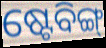
ଷ୍ଟେବିଙ୍ଗ୍